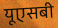
यूएसबी